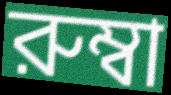
রুম্বা